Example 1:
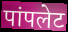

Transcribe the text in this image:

पांपलेट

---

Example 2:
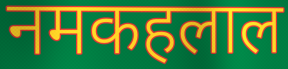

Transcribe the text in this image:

नमकहलाल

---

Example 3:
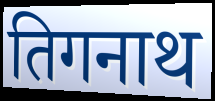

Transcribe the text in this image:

तिगनाथ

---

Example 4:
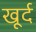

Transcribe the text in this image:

खूर्द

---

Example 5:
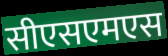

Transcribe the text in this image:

सीएसएमएस